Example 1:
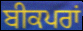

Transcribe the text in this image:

ਬੀਕਪਰਾਂ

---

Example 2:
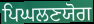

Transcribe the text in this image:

ਪਿਘਲਣਯੋਗ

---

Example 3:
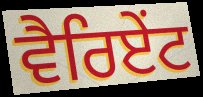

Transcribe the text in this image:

ਵੈਰਿਏਂਟ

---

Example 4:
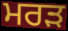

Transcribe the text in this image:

ਮਰੜ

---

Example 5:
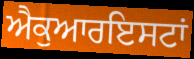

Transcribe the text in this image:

ਐਕੁਆਰਇਸਟਾਂ